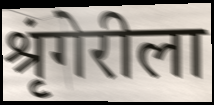
श्रृंगेरीला